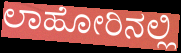
ಲಾಹೋರಿನಲ್ಲಿ